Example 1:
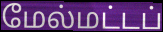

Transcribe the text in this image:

மேல்மட்டப்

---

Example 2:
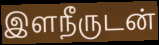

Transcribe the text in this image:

இளநீருடன்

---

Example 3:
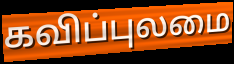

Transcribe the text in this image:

கவிப்புலமை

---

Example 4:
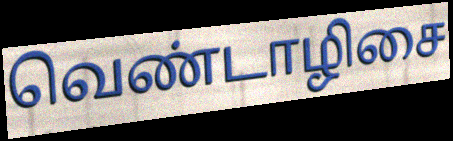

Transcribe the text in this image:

வெண்டாழிசை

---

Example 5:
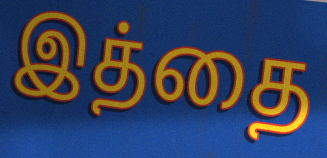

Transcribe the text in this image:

இத்தை